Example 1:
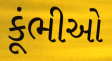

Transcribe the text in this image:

કૂંભીઓ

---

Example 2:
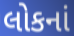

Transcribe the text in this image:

લોકનાં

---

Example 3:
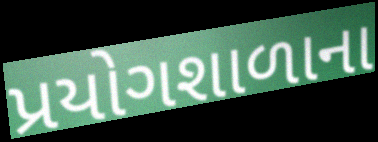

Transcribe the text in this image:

પ્રયોગશાળાના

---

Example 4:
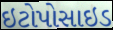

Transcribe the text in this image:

ઇટોપોસાઇડ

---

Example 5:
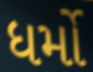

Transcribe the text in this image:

ધર્મો